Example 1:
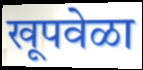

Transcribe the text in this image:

खूपवेळा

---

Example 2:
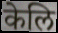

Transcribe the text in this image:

केलि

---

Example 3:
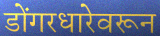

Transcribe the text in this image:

डोंगरधारेवरून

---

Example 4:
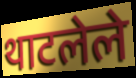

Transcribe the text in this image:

थाटलेले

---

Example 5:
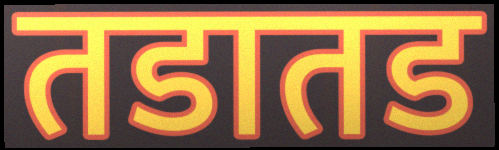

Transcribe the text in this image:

तडातड